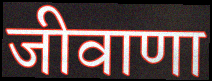
जीवाणा